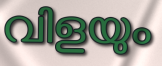
വിളയും